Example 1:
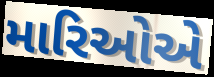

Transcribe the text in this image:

મારિઓએ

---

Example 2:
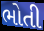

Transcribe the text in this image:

ભોતી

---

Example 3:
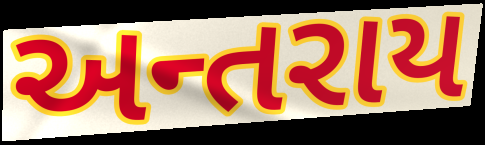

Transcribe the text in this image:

અન્તરાય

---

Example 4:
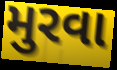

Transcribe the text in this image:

મુરવા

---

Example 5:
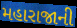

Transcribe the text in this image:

મહારાજાની